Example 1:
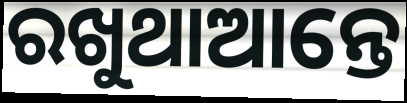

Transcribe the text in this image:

ରଖୁଥାଆନ୍ତେ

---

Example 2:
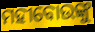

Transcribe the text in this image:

ମହୀବୋଉଙ୍କୁ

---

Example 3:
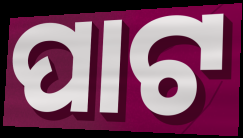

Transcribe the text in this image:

ପାଟ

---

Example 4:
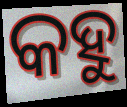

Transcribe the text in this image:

କହୁ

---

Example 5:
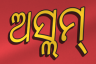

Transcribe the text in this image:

ଅସ୍ଲମ୍